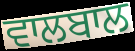
ਵਾਲਬਾਲ